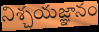
నిశ్చయజ్ఞానం